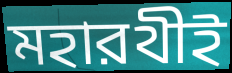
মহারথীই